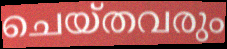
ചെയ്തവരും